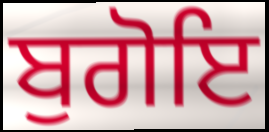
ਬੁਗੋਇ